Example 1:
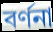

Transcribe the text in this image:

বর্ণনা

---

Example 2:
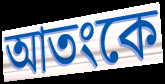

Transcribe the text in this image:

আতংকে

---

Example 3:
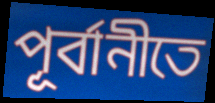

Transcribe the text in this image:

পূর্বানীতে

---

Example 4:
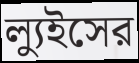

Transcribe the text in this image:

ল্যুইসের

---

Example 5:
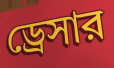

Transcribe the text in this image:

ড্রেসার